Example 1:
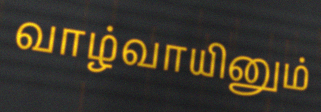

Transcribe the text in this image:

வாழ்வாயினும்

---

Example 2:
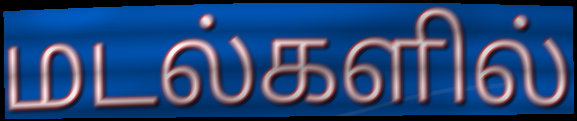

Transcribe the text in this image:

மடல்களில்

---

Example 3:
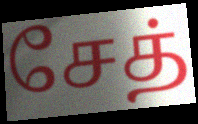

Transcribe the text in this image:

சேத்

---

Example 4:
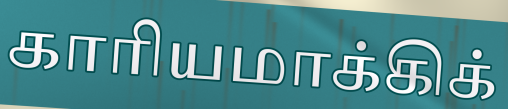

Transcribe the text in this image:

காரியமாக்கிக்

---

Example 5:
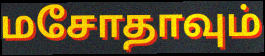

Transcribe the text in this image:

மசோதாவும்